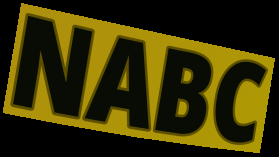
NABC